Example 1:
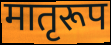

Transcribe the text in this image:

मातृरूप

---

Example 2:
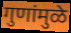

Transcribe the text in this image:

गुणांमुळे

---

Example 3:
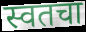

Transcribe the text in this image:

स्वतचा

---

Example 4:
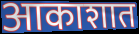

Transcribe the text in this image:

आकाशात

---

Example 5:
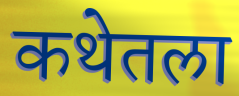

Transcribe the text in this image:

कथेतला